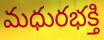
మధురభక్తి